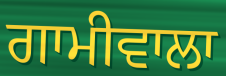
ਗਾਮੀਵਾਲਾ